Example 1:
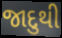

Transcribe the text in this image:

જાદુથી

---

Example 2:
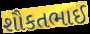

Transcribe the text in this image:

શૌકતભાઈ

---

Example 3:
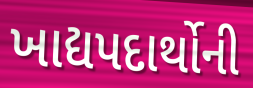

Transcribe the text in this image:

ખાદ્યપદાર્થોની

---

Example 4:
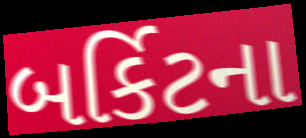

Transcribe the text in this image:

બર્કિટના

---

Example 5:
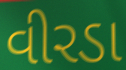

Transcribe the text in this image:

વીરડા